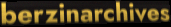
berzinarchives